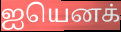
ஐயெனக்